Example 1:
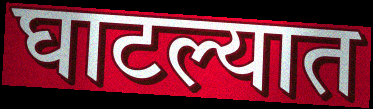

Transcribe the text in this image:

घाटल्यात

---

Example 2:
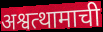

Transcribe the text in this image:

अश्वत्थामाची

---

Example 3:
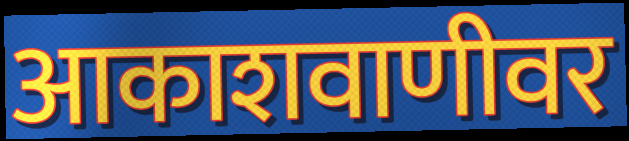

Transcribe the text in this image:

आकाशवाणीवर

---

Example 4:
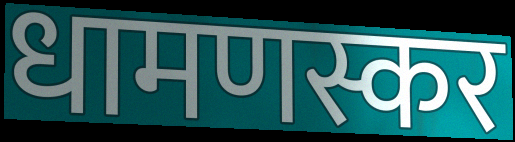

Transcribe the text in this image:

धामणस्कर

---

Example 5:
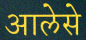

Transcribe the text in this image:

आलेसे